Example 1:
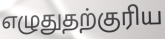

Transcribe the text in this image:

எழுதுதற்குரிய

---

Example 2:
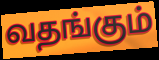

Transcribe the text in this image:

வதங்கும்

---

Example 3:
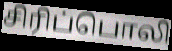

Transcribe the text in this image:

சிரிப்பொலி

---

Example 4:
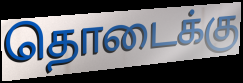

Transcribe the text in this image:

தொடைக்கு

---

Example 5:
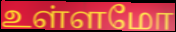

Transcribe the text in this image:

உள்ளமோ